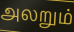
அலறும்